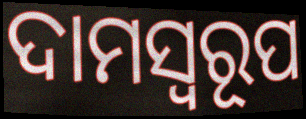
ଦାମସ୍ୱରୂପ